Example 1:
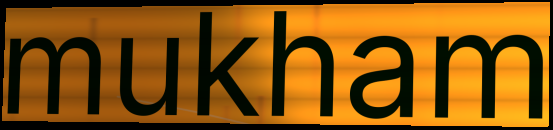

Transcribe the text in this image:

mukham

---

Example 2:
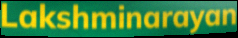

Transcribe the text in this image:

Lakshminarayan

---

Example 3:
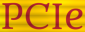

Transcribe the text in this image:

PCIe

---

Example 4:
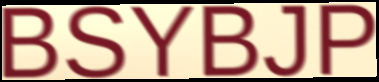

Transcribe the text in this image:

BSYBJP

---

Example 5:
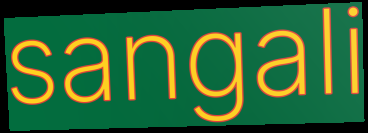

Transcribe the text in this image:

sangali